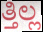
ತ್ತಿಲ್ಲ